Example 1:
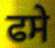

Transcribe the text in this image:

ਫਸੇ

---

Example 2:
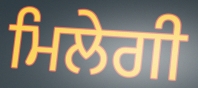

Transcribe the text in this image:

ਮਿਲੇਗੀ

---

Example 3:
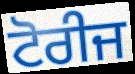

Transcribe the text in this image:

ਟੋਰੀਜ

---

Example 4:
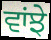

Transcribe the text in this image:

ਵਾਂਝੇ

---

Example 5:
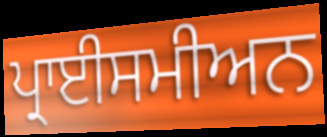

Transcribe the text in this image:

ਪ੍ਰਾਈਸਮੀਅਨ